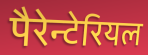
पैरेन्टेरियल